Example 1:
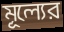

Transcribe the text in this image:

মূল্যের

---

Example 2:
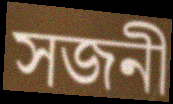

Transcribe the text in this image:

সজনী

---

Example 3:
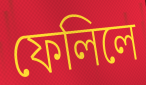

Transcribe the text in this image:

ফেলিলে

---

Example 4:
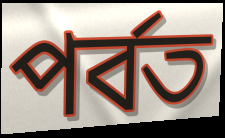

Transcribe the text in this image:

পর্বত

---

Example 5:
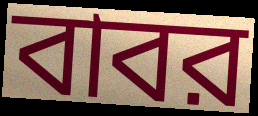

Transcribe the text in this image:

বাবর